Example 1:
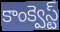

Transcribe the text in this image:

కాంక్వెస్ట్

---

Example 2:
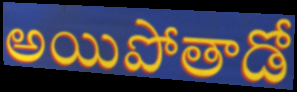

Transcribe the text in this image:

అయిపోతాడో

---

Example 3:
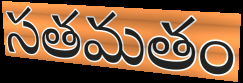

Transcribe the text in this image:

సతమతం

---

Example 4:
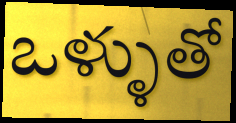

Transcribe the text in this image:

ఒళ్ళుతో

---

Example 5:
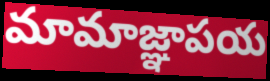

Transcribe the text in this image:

మామాజ్ఞాపయ